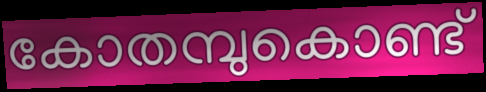
കോതമ്പുകൊണ്ട്